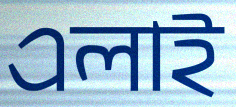
এলাই